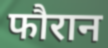
फौरान